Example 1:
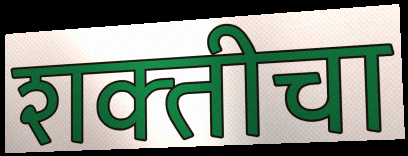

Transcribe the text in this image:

शक्‍तीचा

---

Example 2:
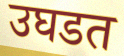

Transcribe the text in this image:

उघडत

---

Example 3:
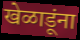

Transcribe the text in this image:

खेळाडूंना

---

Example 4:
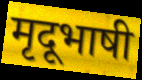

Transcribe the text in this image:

मृदूभाषी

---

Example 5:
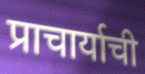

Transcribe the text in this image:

प्राचार्याची